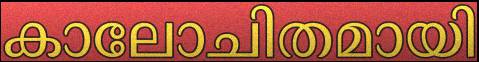
കാലോചിതമായി